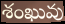
శంఖువు